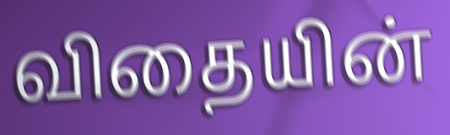
விதையின்